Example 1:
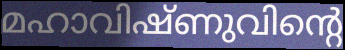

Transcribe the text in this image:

മഹാവിഷ്ണുവിന്റെ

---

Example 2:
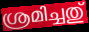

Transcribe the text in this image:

ശ്രമിച്ചതു്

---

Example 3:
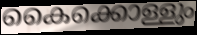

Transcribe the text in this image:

കൈക്കൊള്ളും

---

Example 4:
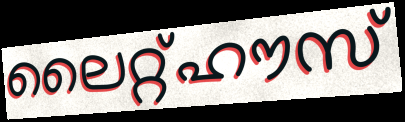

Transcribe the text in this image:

ലൈറ്റ്ഹൗസ്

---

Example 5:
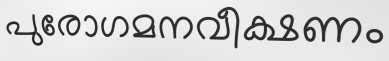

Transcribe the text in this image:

പുരോഗമനവീക്ഷണം